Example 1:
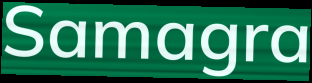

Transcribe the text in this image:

Samagra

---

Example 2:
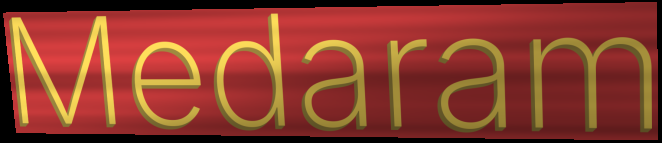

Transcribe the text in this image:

Medaram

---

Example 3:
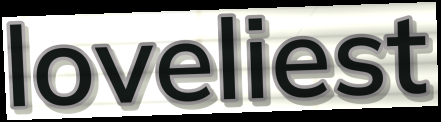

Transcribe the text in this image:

loveliest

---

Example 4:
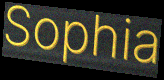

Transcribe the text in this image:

Sophia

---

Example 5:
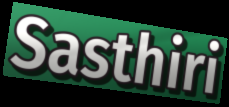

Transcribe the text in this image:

Sasthiri